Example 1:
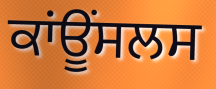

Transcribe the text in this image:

ਕਾਂਊਂਸਲਸ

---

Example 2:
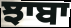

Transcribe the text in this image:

ਝਾਬਾ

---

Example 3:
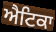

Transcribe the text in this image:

ਐਟਿਕਾ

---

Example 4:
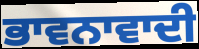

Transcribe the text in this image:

ਭਾਵਨਾਵਾਦੀ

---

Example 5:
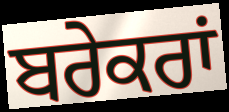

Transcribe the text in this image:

ਬਰੇਕਰਾਂ